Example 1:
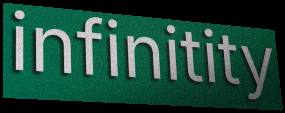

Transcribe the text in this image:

infinitity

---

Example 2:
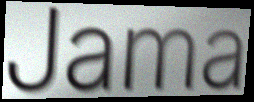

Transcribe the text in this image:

Jama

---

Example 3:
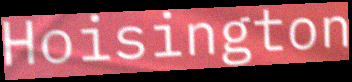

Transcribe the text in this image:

Hoisington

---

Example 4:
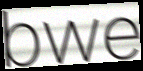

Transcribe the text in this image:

bwe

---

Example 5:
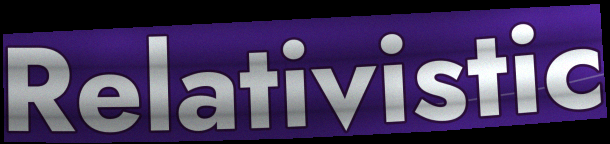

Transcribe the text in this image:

Relativistic